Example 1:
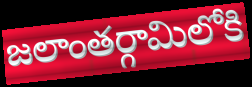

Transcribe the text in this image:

జలాంతర్గామిలోకి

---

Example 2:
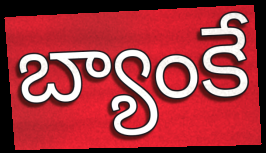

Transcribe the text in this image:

బ్యాంకే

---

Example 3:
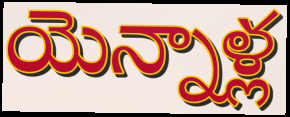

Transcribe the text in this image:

యెన్నాళ్ల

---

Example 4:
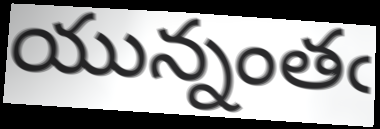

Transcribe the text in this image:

యున్నంతఁ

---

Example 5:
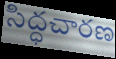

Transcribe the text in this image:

సిద్ధచారణ